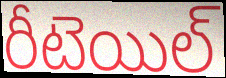
రీటెయిల్